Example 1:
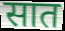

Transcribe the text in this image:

सात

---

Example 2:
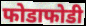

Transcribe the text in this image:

फोडाफोडी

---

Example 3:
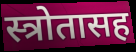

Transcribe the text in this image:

स्त्रोतासह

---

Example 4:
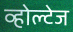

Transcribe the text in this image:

व्होल्टेज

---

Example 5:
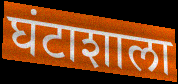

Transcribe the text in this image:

घंटाशाला